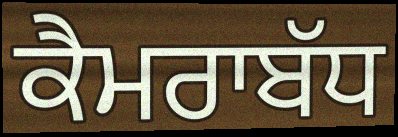
ਕੈਮਰਾਬੱਧ